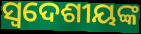
ସ୍ଵଦେଶୀୟଙ୍କ